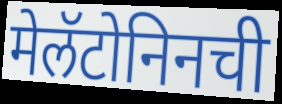
मेलॅटोनिनची